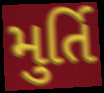
મુર્તિ